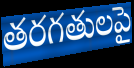
తరగతులపై